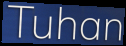
Tuhan